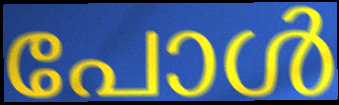
പോൾ